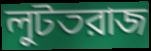
লুটতরাজ